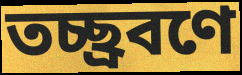
তচ্ছ্রবণে